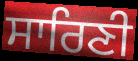
ਸਾਰਿਣੀ